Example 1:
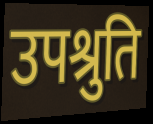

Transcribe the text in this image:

उपश्रुति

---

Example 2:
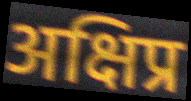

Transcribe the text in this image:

अक्षिप्र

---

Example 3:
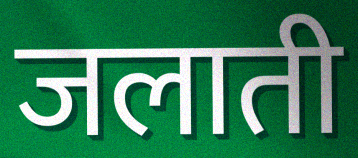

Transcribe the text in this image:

जलाती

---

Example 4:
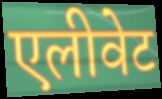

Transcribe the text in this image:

एलीवेट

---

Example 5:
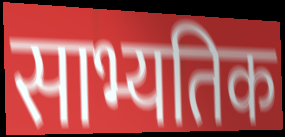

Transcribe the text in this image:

साभ्यतिक